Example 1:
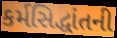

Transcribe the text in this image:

કર્મસિદ્ધાંતની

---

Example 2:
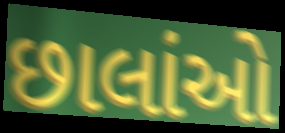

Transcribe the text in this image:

છાલાંઓ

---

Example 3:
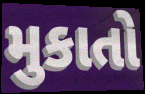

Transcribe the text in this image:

મુકાતો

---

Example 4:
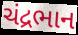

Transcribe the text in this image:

ચંદ્રભાન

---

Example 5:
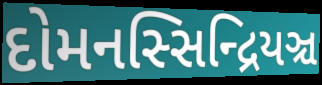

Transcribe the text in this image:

દોમનસ્સિન્દ્રિયઞ્ચ